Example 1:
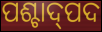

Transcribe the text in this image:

ପଶ୍ଚାଦ୍‍ପଦ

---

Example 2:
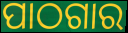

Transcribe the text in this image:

ପାଠଗାର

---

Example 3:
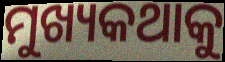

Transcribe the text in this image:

ମୁଖ୍ୟକଥାକୁ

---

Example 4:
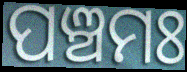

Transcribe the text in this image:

ପଞ୍ଚମଃ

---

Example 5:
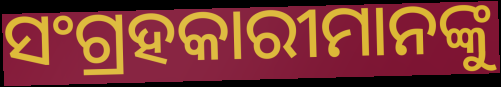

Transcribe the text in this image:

ସଂଗ୍ରହକାରୀମାନଙ୍କୁ